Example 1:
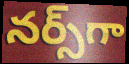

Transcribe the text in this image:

నర్స్‌గా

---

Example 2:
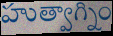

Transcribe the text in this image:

హుత్వాగ్నిం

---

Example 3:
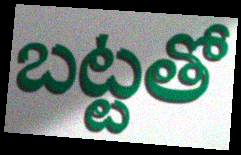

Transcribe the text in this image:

బట్టతో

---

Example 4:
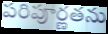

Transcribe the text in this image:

పరిపూర్ణతను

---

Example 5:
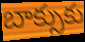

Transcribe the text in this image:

బాక్సుకు